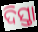
ଦିସ୍ତା